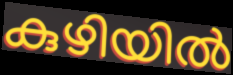
കുഴിയിൽ